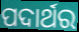
ପଦାର୍ଥର